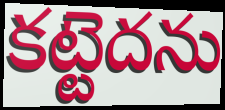
కట్టెదను